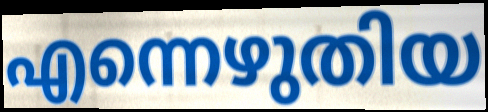
എന്നെഴുതിയ